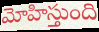
మోహిస్తుంది